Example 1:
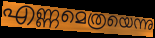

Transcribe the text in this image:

എണ്ണമെത്രയെന്നു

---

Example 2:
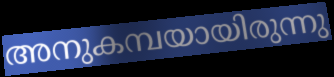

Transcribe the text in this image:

അനുകമ്പയായിരുന്നു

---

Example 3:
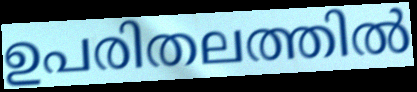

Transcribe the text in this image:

ഉപരിതലത്തിൽ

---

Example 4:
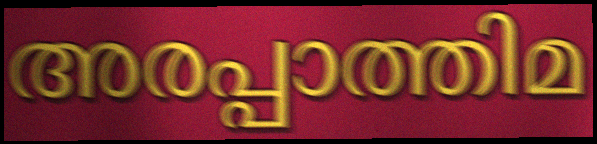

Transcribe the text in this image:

അരപ്പാത്തിമ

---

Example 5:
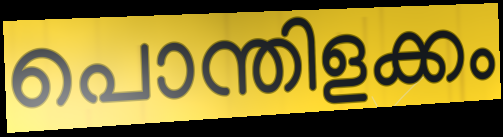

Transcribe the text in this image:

പൊന്തിളക്കം